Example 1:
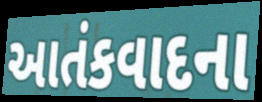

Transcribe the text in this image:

આતંકવાદના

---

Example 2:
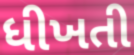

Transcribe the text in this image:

ધીખતી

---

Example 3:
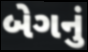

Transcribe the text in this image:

બેગનું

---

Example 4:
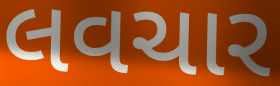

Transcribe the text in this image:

લવચાર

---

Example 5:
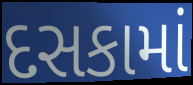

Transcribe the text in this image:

દસકામાં